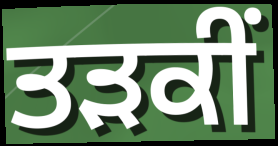
ਤੜਕੀਂ